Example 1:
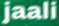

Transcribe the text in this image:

jaali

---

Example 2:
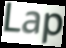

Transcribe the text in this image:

Lap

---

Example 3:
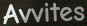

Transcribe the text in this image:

Avvites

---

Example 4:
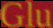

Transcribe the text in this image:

Glu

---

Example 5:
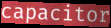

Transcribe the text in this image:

capacitor